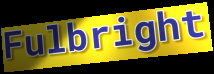
Fulbright